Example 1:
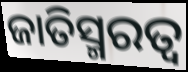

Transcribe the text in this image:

ଜାତିସ୍ମରତ୍ୱ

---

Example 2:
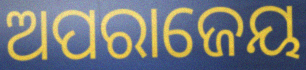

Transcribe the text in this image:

ଅପରାଜେୟ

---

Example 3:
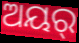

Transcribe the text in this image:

ଅୟର୍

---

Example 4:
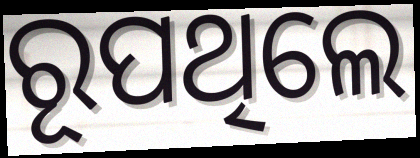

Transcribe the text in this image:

ରୂପଥିଲେ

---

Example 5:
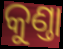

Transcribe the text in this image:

କୁଣ୍ତା